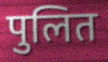
पुलित